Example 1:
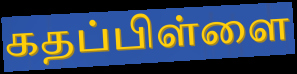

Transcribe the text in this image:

கதப்பிள்ளை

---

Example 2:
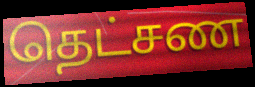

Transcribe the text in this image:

தெட்சண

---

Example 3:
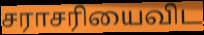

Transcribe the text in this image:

சராசரியைவிட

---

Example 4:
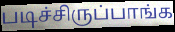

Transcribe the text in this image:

படிச்சிருப்பாங்க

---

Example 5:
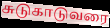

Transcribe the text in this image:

சுடுகாடுவரை